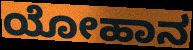
ಯೋಹಾನ